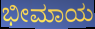
ಭೀಮಾಯ